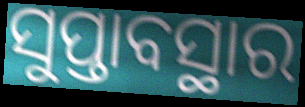
ସୁପ୍ତାବସ୍ଥାର